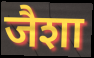
जैशा